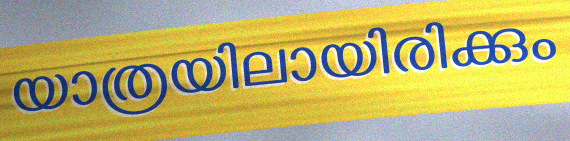
യാത്രയിലായിരിക്കും